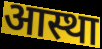
आस्था